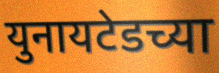
युनायटेडच्या